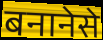
बनानेसे